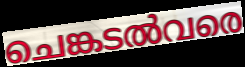
ചെങ്കടൽവരെ